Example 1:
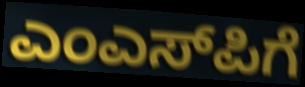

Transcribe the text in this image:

ಎಂಎಸ್‌ಪಿಗೆ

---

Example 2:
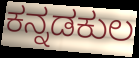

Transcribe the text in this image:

ಕನ್ನಡಕುಲ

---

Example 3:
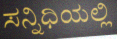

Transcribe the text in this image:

ಸನ್ನಿಧಿಯಲ್ಲಿ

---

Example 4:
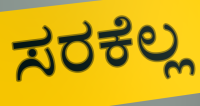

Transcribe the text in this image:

ಸರಕೆಲ್ಲ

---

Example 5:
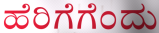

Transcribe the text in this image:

ಹೆರಿಗೆಗೆಂದು